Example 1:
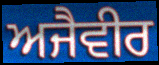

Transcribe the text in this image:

ਅਜੈਵੀਰ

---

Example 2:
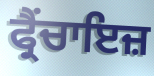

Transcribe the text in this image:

ਫ੍ਰੈਂਚਾਇਜ਼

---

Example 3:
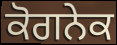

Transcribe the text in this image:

ਕੋਗਨੇਕ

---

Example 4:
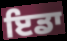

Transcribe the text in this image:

ਇਡਾ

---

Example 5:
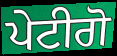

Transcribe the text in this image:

ਪੇਟੀਗੋ